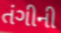
તંગીની